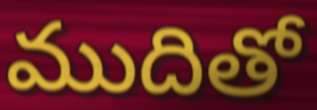
ముదితో